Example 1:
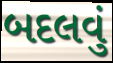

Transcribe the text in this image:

બદલવું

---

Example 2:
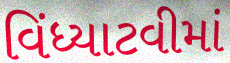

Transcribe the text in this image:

વિંધ્યાટવીમાં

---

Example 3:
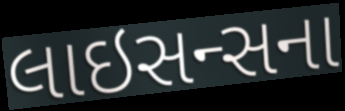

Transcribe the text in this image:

લાઇસન્સના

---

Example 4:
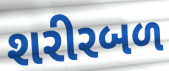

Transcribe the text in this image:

શરીરબળ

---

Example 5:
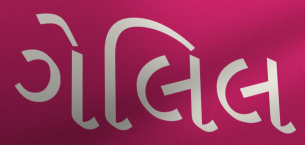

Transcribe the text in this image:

ગેલિલ